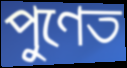
পুণেত